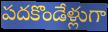
పదకొండేళ్లుగా